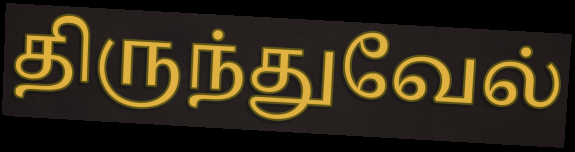
திருந்துவேல்